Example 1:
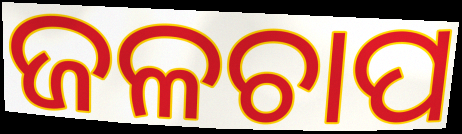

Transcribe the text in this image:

ଜଳଚାପ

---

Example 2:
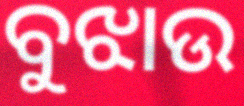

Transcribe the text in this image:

ବୁଝାଉ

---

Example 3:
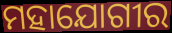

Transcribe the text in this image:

ମହାଯୋଗୀର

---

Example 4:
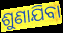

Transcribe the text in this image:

ଶୁଣାଯିବା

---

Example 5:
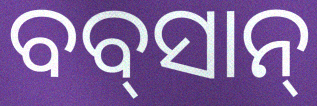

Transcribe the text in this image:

ବବ୍‌ସାନ୍